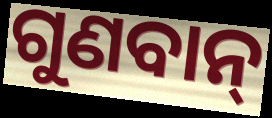
ଗୁଣବାନ୍